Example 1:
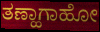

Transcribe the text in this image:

ತಣ್ಹಾಗಾಹೋ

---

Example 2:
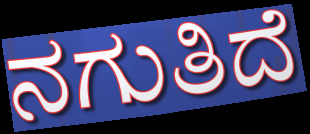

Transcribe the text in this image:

ನಗುತಿದೆ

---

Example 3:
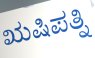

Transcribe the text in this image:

ಋಷಿಪತ್ನಿ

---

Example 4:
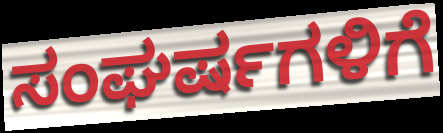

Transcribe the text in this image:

ಸಂಘರ್ಷಗಳಿಗೆ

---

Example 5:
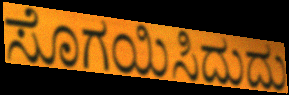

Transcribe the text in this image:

ಸೊಗಯಿಸಿದುದು